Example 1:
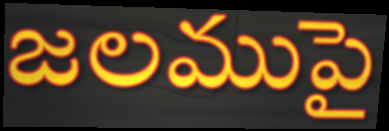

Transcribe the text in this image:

జలముపై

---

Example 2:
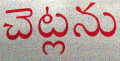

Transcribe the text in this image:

చెట్లను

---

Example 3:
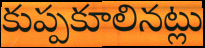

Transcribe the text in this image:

కుప్పకూలినట్లు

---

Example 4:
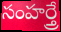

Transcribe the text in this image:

సంహర్త్రే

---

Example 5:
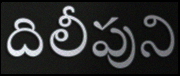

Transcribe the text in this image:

దిలీపుని